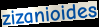
zizanioides